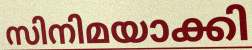
സിനിമയാക്കി